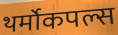
थर्मोकपल्स